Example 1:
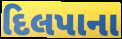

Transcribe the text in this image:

દિલપાના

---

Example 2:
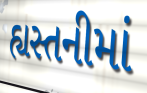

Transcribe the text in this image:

હ્યસ્તનીમાં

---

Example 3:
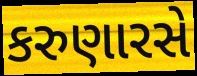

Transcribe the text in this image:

કરુણારસે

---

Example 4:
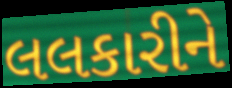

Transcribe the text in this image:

લલકારીને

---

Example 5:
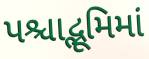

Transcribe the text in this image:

પશ્ચાદ્ભૂમિમાં